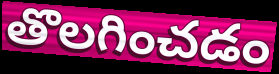
తొలగించడం